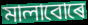
মালাবোৰে